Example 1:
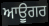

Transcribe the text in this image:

ਆਊਗਰ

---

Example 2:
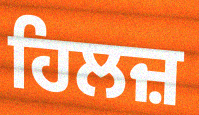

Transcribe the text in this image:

ਹਿਲਜ਼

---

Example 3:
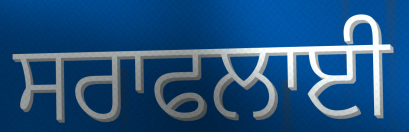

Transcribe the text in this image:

ਸਰਾਫਲਾਈ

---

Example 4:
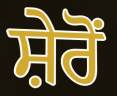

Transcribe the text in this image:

ਸ਼ੇਰੋਂ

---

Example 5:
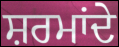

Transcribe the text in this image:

ਸ਼ਰਮਾਂਦੇ